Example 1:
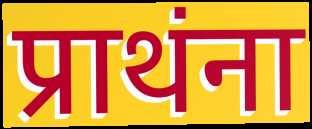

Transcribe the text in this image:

प्राथंना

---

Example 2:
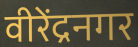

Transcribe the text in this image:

वीरेंद्रनगर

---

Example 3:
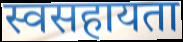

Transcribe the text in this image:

स्वसहायता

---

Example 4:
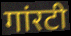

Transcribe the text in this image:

गांरटी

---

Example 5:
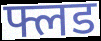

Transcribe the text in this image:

फ्लड